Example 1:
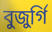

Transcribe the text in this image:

বুজুর্গি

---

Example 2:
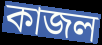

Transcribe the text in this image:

কাজল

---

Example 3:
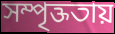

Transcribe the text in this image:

সম্পৃক্ততায়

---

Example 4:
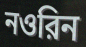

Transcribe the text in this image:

নওরিন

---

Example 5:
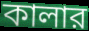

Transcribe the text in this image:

কালার